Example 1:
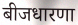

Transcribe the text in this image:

बीजधारणा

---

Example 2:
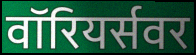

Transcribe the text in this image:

वॉरियर्सवर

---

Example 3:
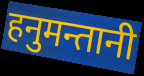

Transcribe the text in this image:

हनुमन्तानी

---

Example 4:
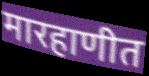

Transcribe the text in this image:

मारहाणीत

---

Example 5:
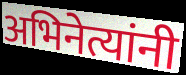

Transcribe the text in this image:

अभिनेत्यांनी